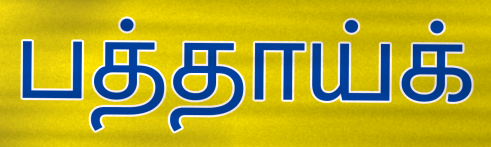
பத்தாய்க்